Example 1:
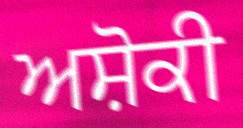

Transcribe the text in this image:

ਅਸ਼ੋਕੀ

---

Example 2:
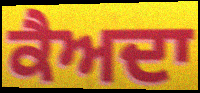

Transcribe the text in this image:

ਕੈਅਦਾ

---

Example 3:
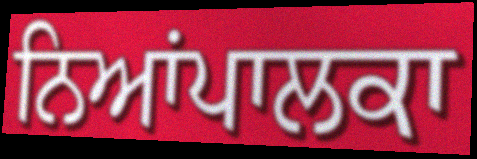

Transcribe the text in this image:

ਨਿਆਂਪਾਲਕਾ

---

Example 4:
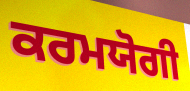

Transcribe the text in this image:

ਕਰਮਯੋਗੀ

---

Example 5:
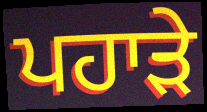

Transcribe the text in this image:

ਪਹਾੜੇ